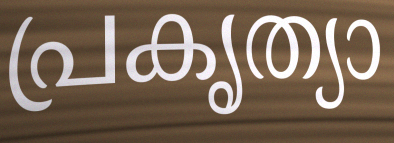
പ്രകൃത്യാ